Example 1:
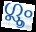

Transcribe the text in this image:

ഗ്ലൂം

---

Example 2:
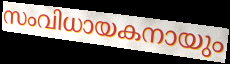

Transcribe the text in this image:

സംവിധായകനായും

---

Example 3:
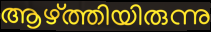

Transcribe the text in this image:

ആഴ്ത്തിയിരുന്നു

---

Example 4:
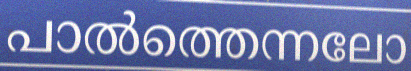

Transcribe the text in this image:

പാൽത്തെന്നലോ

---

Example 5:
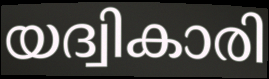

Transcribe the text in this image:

യദ്വികാരി